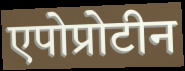
एपोप्रोटीन